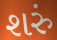
શરું